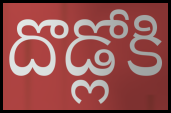
దొడ్లోకి